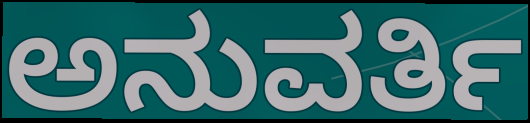
ಅನುವರ್ತಿ